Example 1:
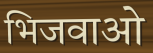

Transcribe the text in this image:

भिजवाओ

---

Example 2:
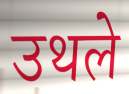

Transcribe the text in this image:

उथले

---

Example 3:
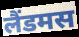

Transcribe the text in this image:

लैंडमस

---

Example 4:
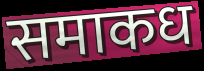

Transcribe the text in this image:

समाकध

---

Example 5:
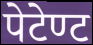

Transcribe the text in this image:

पेटेण्ट